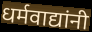
धर्मवाद्यांनी